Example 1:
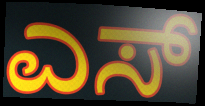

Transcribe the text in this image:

ಎಸ್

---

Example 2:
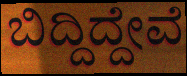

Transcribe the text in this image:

ಬಿದ್ದಿದ್ದೇವೆ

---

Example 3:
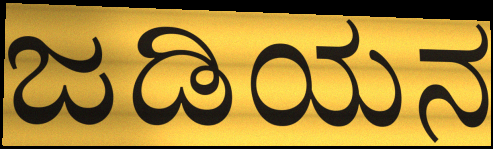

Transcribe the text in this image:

ಜಡಿಯನ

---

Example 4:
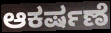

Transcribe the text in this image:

ಆಕರ್ಷಣೆ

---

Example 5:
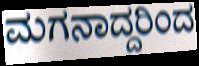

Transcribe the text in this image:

ಮಗನಾದ್ದರಿಂದ